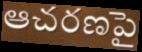
ఆచరణపై